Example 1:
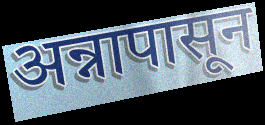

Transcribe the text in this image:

अन्नापासून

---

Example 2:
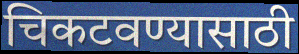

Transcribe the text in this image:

चिकटवण्यासाठी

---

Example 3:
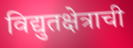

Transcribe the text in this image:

विद्युतक्षेत्राची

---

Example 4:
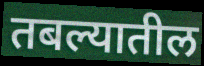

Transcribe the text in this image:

तबल्यातील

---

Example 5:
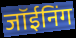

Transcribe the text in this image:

जॉईनिंग